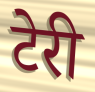
टेरी